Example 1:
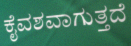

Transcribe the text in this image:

ಕೈವಶವಾಗುತ್ತದೆ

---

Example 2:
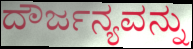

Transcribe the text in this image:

ದೌರ್ಜನ್ಯವನ್ನು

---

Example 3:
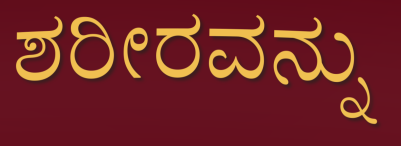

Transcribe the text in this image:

ಶರೀರವನ್ನು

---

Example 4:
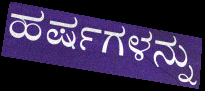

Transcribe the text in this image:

ಹರ್ಷಗಳನ್ನು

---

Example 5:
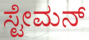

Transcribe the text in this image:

ಸ್ಟೇಮನ್